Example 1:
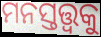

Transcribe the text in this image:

ମନସ୍ତତ୍ତ୍ୱକୁ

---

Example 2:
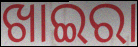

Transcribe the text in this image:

ଖାଇରା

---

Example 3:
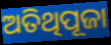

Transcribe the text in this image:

ଅତିଥିପୂଜା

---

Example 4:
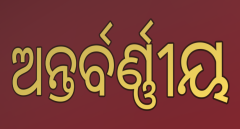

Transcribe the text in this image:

ଅନ୍ତର୍ବର୍ଣ୍ଣୀୟ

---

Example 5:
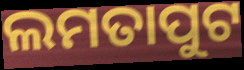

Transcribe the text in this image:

ଲମତାପୁଟ